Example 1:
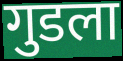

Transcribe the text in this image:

गुडला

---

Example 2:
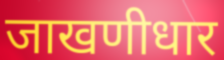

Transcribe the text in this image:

जाखणीधार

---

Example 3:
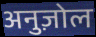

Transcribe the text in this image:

अनुज़ोल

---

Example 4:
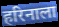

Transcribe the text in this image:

हरिनाला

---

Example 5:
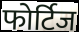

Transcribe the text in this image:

फोर्टिज